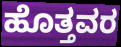
ಹೊತ್ತವರ